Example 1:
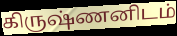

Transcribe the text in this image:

கிருஷ்ணனிடம்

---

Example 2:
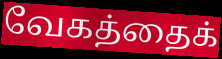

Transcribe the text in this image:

வேகத்தைக்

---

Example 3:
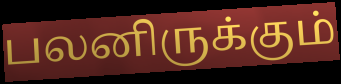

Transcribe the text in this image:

பலனிருக்கும்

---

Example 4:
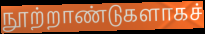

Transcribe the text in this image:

நூற்றாண்டுகளாகச்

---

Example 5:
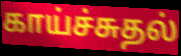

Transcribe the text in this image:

காய்ச்சுதல்